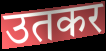
उतकर